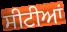
ਸੀਟੀਆਂ